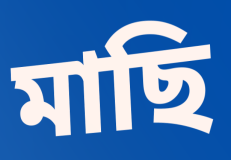
মাছি